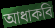
আধাকবি